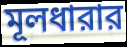
মূলধারার